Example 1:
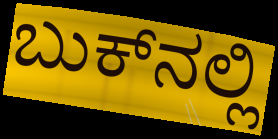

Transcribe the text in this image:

ಬುಕ್‌ನಲ್ಲಿ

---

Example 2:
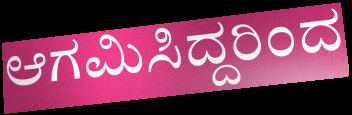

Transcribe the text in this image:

ಆಗಮಿಸಿದ್ದರಿಂದ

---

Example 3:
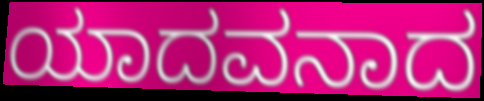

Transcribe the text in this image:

ಯಾದವನಾದ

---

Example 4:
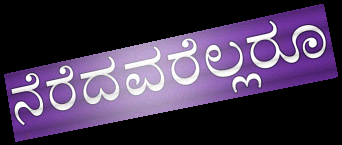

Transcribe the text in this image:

ನೆರೆದವರೆಲ್ಲರೂ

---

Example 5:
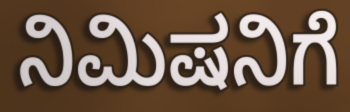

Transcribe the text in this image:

ನಿಮಿಷನಿಗೆ